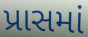
પ્રાસમાં